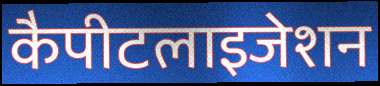
कैपीटलाइजेशन